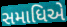
સમાધિએ